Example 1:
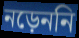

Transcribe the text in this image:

নড়েননি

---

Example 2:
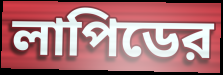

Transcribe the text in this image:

লাপিডের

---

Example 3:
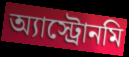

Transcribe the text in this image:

অ্যাস্ট্রোনমি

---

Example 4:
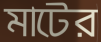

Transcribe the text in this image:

মাটের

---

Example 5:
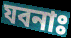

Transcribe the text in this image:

যবনাঃ